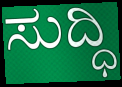
ಸುದ್ಧಿ